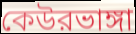
কেউরভাঙ্গা